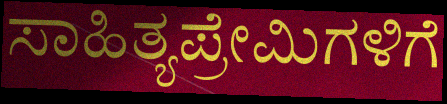
ಸಾಹಿತ್ಯಪ್ರೇಮಿಗಳಿಗೆ